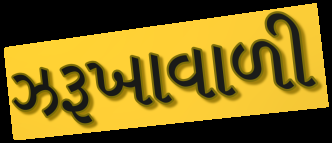
ઝરૂખાવાળી